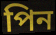
পিন